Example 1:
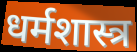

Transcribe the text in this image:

धर्मशास्त्र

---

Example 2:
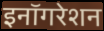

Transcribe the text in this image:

इनॉगरेशन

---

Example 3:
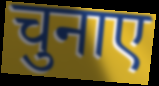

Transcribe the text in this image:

चुनाए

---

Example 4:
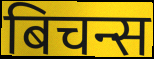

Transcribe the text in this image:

बिचन्स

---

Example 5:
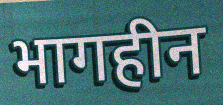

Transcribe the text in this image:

भागहीन